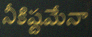
నీకిష్టమేనా